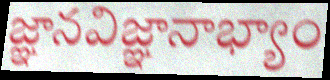
జ్ఞానవిజ్ఞానాభ్యాం